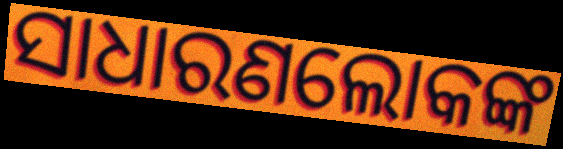
ସାଧାରଣଲୋକଙ୍କ